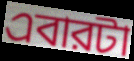
এবারটা